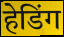
हेडिंग